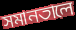
সমানতালে